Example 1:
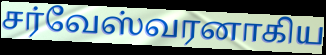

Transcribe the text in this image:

சர்வேஸ்வரனாகிய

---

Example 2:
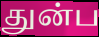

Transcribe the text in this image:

துன்ப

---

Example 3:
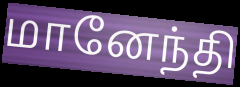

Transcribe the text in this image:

மானேந்தி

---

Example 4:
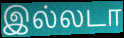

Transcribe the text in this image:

இல்லடா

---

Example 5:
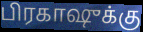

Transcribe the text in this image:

பிரகாஷுக்கு